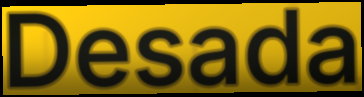
Desada